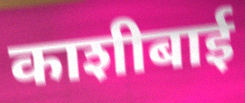
काशीबाई